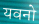
यवनो